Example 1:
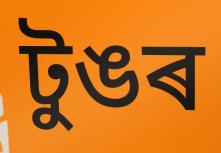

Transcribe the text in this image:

টুঙৰ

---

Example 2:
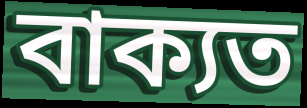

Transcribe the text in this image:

বাক্যত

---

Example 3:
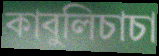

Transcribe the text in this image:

কাবুলিচাচা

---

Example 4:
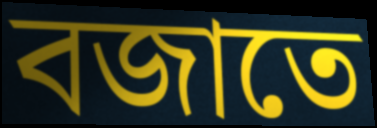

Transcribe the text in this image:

বজাতে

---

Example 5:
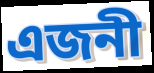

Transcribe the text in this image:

এজনী